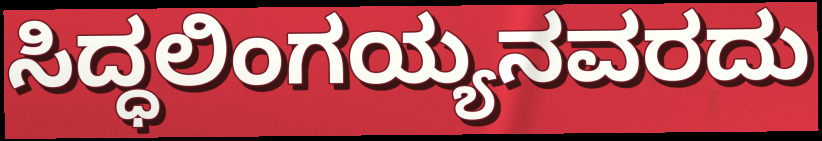
ಸಿದ್ಧಲಿಂಗಯ್ಯನವರದು